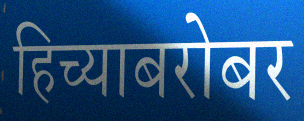
हिच्याबरोबर